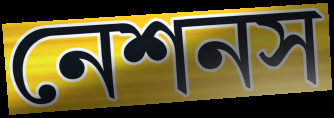
নেশনস